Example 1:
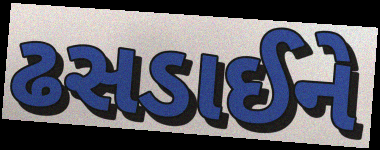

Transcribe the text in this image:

ઢસડાઈને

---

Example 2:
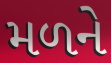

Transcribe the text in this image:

મળને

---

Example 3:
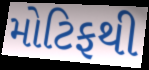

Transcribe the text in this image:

મોટિફથી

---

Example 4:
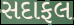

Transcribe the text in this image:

સદાફલ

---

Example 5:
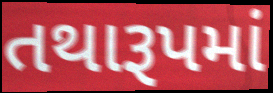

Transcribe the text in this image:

તથારૂપમાં